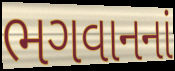
ભગવાનનાં